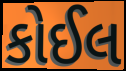
કોઈલ